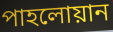
পাহলোয়ান